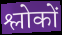
श्लोकों